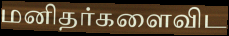
மனிதர்களைவிட